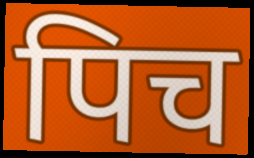
पिच